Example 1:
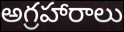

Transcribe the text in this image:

అగ్రహారాలు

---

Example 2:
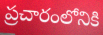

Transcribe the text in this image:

ప్రచారంలోనికి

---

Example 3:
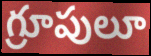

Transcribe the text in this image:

గ్రూపులూ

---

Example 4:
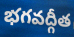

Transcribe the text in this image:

భగవద్గీత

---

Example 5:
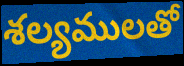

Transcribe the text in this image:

శల్యములతో